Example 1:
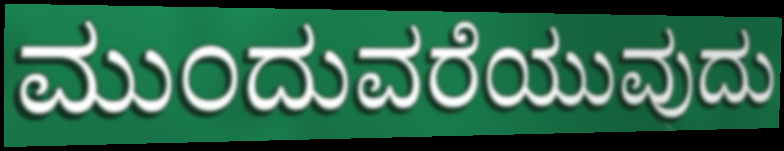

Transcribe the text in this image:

ಮುಂದುವರೆಯುವುದು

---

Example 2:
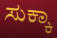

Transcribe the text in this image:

ಸುಕ್ಕಾ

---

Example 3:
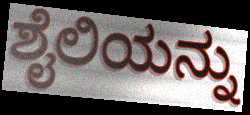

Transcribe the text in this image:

ಶೈಲಿಯನ್ನು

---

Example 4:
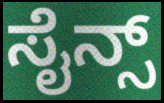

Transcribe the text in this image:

ಸೈನ್ಸ್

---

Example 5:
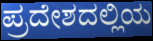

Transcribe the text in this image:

ಪ್ರದೇಶದಲ್ಲಿಯ